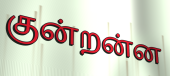
குன்றன்ன